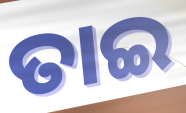
ତାଇ